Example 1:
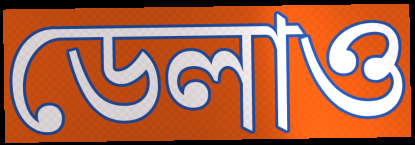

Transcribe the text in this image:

ডেলাও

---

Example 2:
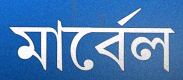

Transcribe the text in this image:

মার্বেল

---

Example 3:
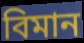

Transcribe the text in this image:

বিমান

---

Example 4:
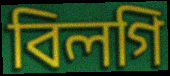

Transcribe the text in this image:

বিলগি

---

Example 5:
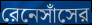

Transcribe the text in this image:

রেনেসাঁসের